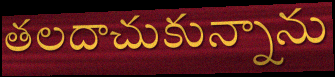
తలదాచుకున్నాను